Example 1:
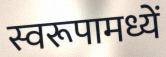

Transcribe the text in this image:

स्वरूपामध्यें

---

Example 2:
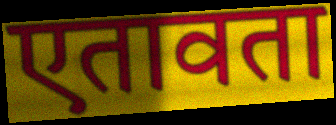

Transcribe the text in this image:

एतावता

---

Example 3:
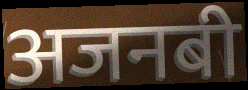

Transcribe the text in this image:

अजनबी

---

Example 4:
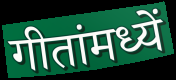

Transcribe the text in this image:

गीतांमध्यें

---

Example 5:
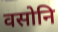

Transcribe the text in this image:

वसोनि